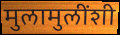
मुलामुलींशी